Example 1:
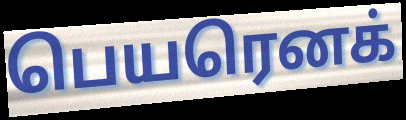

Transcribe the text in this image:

பெயரெனக்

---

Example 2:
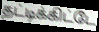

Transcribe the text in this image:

தட்டிக்கிட்டே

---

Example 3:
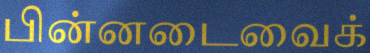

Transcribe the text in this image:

பின்னடைவைக்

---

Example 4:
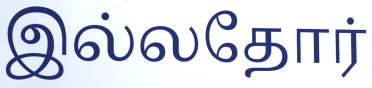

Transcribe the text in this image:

இல்லதோர்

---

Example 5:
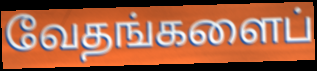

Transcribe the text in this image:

வேதங்களைப்